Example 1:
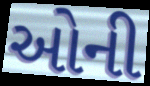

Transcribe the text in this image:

ઓની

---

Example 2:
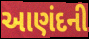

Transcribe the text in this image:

આણંદની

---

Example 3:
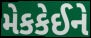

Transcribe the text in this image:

મેકકેઈને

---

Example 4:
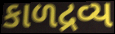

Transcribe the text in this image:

કાળદ્રવ્ય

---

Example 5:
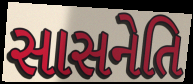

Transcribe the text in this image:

સાસનેતિ